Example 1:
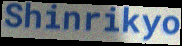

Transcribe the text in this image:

Shinrikyo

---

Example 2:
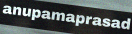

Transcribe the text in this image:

anupamaprasad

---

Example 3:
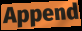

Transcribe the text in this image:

Append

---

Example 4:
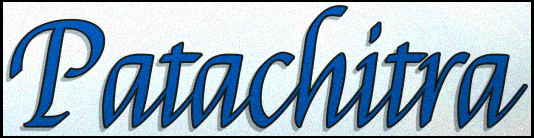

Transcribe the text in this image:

Patachitra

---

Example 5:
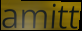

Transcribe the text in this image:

amitt